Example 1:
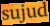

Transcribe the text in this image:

sujud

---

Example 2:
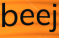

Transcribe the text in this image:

beej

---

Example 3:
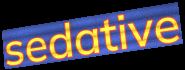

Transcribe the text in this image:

sedative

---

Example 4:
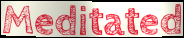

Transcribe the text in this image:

Meditated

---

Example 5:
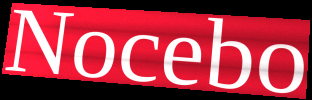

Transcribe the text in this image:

Nocebo